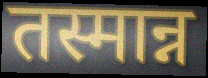
तस्मान्न